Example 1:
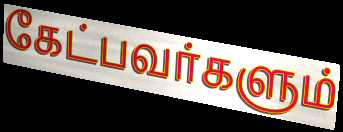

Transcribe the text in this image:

கேட்பவர்களும்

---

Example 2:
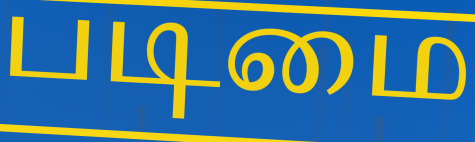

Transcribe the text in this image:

படிமை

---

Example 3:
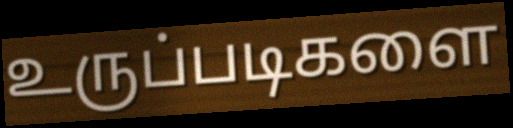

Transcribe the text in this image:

உருப்படிகளை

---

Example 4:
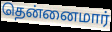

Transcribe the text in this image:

தென்னைமார்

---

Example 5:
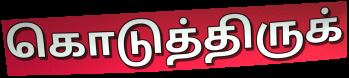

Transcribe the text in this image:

கொடுத்திருக்